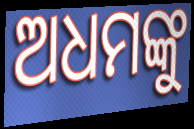
ଅଧମଙ୍କୁ